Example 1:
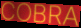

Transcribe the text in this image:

COBRA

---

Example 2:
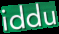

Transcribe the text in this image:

iddu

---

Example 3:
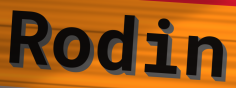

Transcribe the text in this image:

Rodin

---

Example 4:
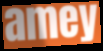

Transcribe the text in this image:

amey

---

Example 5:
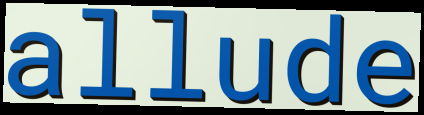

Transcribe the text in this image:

allude